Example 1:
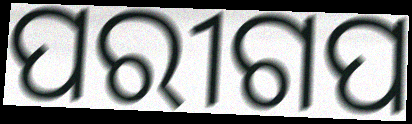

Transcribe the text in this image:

ପରୀଗପ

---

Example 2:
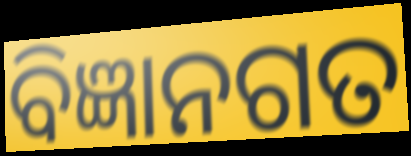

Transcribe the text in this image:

ବିଜ୍ଞାନଗତ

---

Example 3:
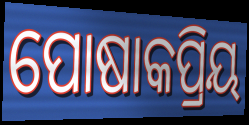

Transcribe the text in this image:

ପୋଷାକପ୍ରିୟ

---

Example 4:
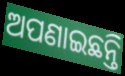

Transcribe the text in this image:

ଅପଣାଇଛନ୍ତି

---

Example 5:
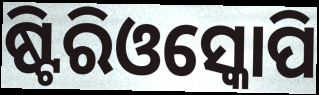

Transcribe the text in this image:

ଷ୍ଟିରିଓସ୍କୋପି